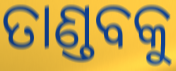
ତାଣ୍ଡବକୁ